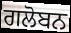
ਗਲੋਬਨ